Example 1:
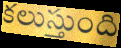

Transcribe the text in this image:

కలుస్తుంది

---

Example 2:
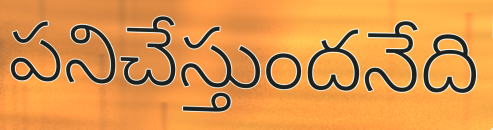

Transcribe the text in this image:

పనిచేస్తుందనేది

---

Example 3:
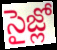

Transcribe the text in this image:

సైజ్లో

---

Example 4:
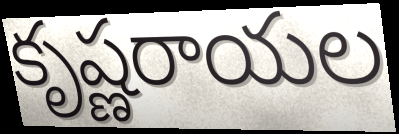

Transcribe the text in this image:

కృష్ణరాయల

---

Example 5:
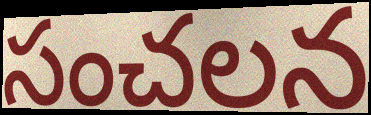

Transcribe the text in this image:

సంచలన